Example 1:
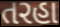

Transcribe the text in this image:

તરહા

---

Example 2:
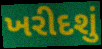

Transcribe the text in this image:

ખરીદશું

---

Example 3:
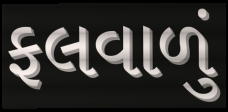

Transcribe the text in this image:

ફલવાળું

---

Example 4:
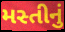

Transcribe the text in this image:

મસ્તીનું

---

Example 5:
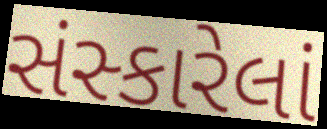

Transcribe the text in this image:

સંસ્કારેલાં